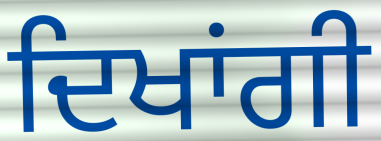
ਦਿਖਾਂਗੀ